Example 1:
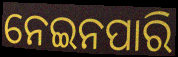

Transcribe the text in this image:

ନେଇନପାରି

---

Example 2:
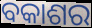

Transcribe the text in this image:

ବକାଶର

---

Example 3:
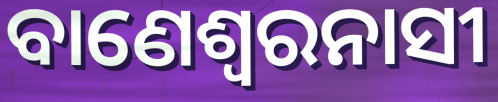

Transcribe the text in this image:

ବାଣେଶ୍ୱରନାସୀ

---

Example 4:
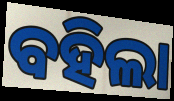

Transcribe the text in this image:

ବହିଲା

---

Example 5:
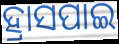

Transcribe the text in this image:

ହ୍ରାସପାଇ